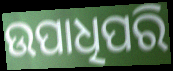
ଉପାଧିପରି